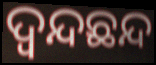
ଦ୍ୱନ୍ଦଛନ୍ଦ